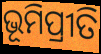
ଭୂମିପ୍ରୀତି